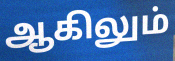
ஆகிலும்